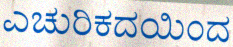
ಎಚುರಿಕದಯಿಂದ